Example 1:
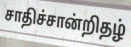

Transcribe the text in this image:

சாதிச்சான்றிதழ்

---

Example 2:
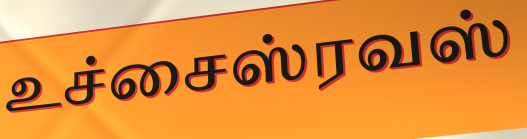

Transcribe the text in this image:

உச்சைஸ்ரவஸ்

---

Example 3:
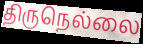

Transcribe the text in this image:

திருநெல்லை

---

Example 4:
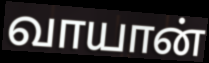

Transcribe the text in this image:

வாயான்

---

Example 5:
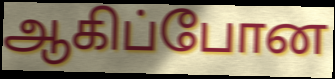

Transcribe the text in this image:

ஆகிப்போன